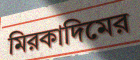
মিরকাদিমের